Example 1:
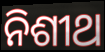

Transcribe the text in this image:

ନିଶୀଥ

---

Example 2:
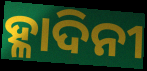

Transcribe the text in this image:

ହ୍ଳାଦିନୀ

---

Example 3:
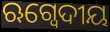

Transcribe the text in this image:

ଋଗ୍ବେଦୀୟ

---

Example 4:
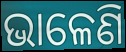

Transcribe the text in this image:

ଭାଳେଣି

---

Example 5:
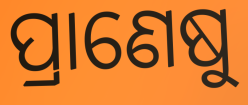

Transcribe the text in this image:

ପ୍ରାଣେଷୁ